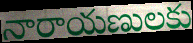
నారాయణులకు